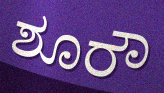
ಶೂರೌ